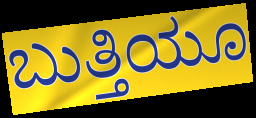
ಬುತ್ತಿಯೂ